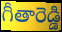
గీతారెడ్డి